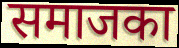
समाजका